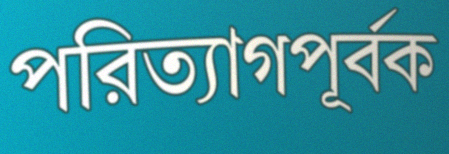
পরিত্যাগপূর্বক